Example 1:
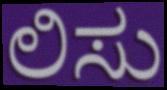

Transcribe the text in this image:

ಲಿಸು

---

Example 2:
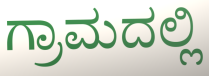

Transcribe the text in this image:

ಗ್ರಾಮದಲ್ಲಿ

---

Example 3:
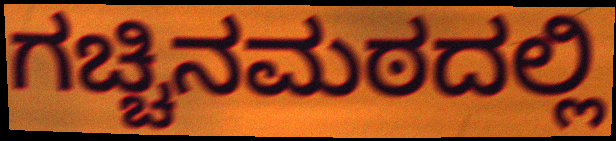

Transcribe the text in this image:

ಗಚ್ಚಿನಮಠದಲ್ಲಿ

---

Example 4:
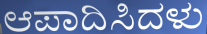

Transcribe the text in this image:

ಆಪಾದಿಸಿದಳು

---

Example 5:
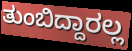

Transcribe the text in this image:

ತುಂಬಿದ್ದಾರಲ್ಲ